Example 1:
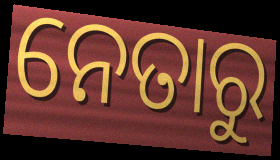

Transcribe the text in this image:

ନେତାରୁ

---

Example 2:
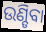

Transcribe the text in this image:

ଉଣ୍ଡିବା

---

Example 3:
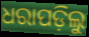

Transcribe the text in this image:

ଧରାପଡ଼ିଲୁ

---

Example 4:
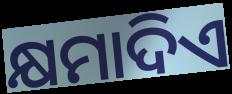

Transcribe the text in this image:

କ୍ଷମାଦିଏ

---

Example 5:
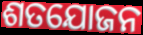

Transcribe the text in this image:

ଶତଯୋଜନ